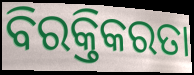
ବିରକ୍ତିକରତା